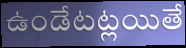
ఉండేటట్లయితే